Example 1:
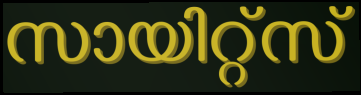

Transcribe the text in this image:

സായിറ്റ്സ്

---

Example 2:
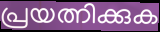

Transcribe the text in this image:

പ്രയത്നിക്കുക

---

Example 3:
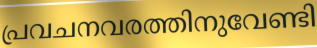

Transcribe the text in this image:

പ്രവചനവരത്തിനുവേണ്ടി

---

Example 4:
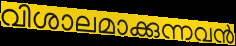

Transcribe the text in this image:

വിശാലമാക്കുന്നവൻ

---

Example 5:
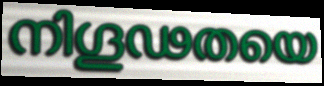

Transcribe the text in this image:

നിഗൂഢതയെ